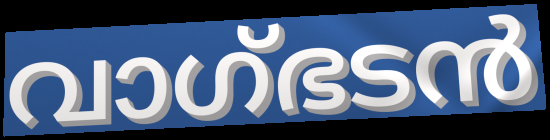
വാഗ്ഭടൻ